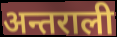
अन्तराली